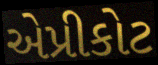
એપ્રીકોટ